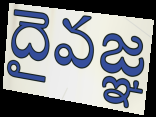
దైవజ్ఞ